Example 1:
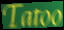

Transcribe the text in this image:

Tatoo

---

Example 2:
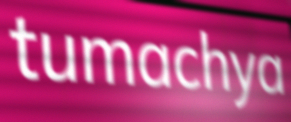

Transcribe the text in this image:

tumachya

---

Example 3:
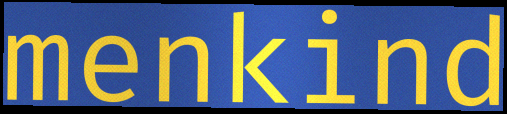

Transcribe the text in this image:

menkind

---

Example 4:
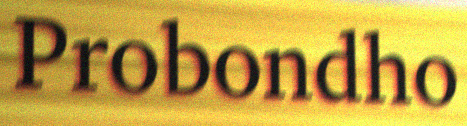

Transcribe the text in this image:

Probondho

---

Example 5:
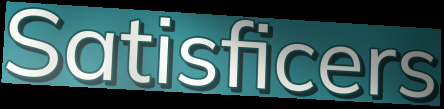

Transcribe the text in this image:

Satisficers